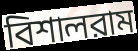
বিশালরাম